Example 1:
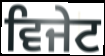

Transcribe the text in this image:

ਵਿਜੇਟ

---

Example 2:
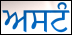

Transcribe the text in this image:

ਅਸਟੰ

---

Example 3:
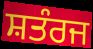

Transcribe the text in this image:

ਸ਼ਤੰਰਜ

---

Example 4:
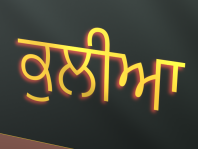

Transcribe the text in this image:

ਕੁਲੀਆ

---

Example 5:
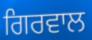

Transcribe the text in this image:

ਗਿਰਵਾਲ